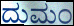
ದುಮಂ